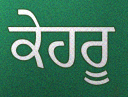
ਕੇਹਰੂ